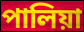
পালিয়া